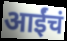
आईंचं